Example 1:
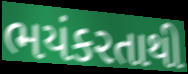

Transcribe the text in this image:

ભયંકરતાથી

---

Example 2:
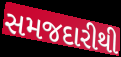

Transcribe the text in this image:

સમજદારીથી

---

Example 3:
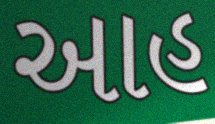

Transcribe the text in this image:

આહ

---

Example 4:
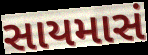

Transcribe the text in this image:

સાયમાસં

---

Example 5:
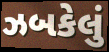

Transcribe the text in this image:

ઝબકેલું